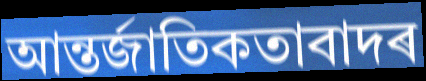
আন্তৰ্জাতিকতাবাদৰ